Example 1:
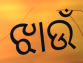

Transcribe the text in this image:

ଝାଉଁ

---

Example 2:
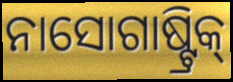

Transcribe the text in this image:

ନାସୋଗାଷ୍ଟ୍ରିକ୍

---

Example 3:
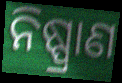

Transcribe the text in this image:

ନିଷ୍ପ୍ରାଣ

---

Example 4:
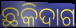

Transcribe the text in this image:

ଛକିଦାଗ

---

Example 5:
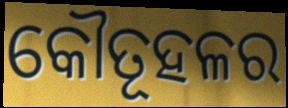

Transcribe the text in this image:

କୌତୂହଳର